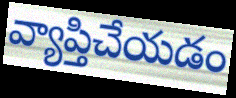
వ్యాప్తిచేయడం